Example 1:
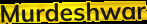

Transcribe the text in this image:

Murdeshwar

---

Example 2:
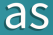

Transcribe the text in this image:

as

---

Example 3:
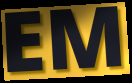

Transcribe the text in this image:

EM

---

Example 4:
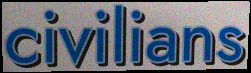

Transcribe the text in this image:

civilians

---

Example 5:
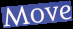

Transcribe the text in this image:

Move